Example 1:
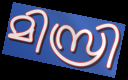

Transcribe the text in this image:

മിസ്രി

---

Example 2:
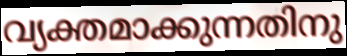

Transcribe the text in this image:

വ്യക്തമാക്കുന്നതിനു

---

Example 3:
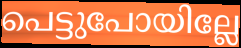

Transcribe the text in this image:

പെട്ടുപോയില്ലേ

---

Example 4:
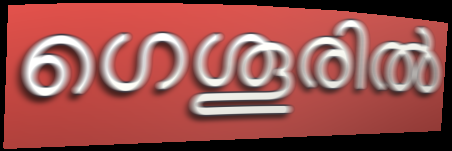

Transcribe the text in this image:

ഗെശൂരിൽ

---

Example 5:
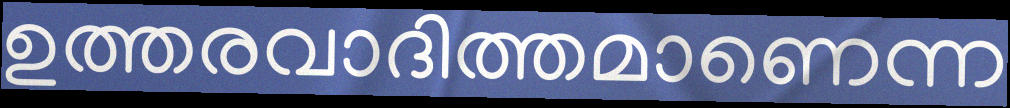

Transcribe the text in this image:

ഉത്തരവാദിത്തമാണെന്ന